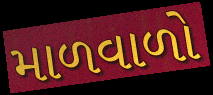
માળવાળો